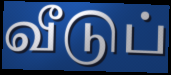
வீடுப்